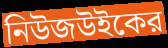
নিউজউইকের